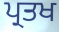
ਪ੍ਰਤਖ